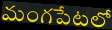
మంగపేటలో